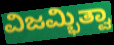
ವಿಜಮ್ಭಿತ್ವಾ